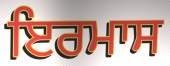
ਇਰਮਾਸ